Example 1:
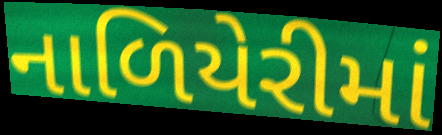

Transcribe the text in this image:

નાળિયેરીમાં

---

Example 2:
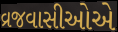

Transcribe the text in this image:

વ્રજવાસીઓએ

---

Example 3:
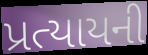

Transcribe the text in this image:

પ્રત્યાયની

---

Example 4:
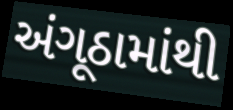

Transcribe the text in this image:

અંગૂઠામાંથી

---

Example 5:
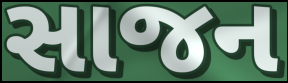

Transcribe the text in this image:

સાજન